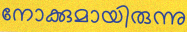
നോക്കുമായിരുന്നു